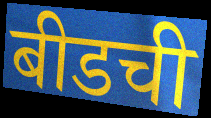
बीडची